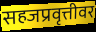
सहजप्रवृत्तीवर